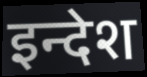
इन्देश